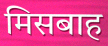
मिसबाह